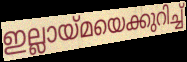
ഇല്ലായ്മയെക്കുറിച്ച്